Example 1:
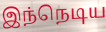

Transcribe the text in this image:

இந்நெடிய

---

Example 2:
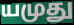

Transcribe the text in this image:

யமுது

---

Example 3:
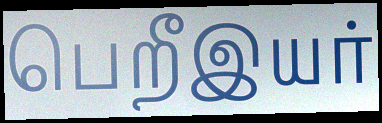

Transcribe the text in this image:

பெறீஇயர்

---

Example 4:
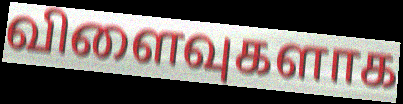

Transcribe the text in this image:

விளைவுகளாக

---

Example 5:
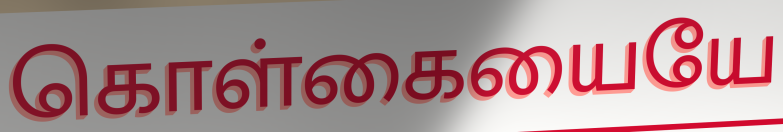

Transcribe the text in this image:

கொள்கையையே